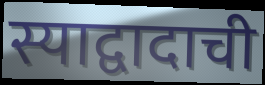
स्याद्वादाची